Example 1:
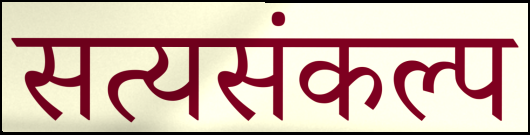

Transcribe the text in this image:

सत्यसंकल्प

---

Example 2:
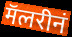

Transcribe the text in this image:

मॅलरीनं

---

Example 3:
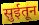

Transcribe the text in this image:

सुईतून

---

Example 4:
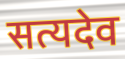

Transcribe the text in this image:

सत्यदेव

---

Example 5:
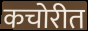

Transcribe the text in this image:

कचोरीत